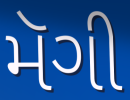
મૅગી